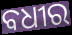
ବଧୀର